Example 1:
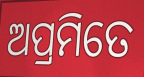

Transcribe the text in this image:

ଅପ୍ରମିତେ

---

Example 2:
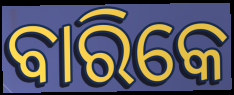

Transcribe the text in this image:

ବାରିକେ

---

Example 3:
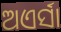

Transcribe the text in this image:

ଅଏର୍ସା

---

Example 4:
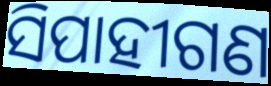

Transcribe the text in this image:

ସିପାହୀଗଣ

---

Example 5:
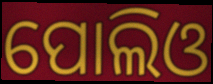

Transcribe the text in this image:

ପୋଲିଓ